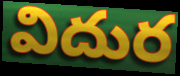
విదుర